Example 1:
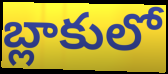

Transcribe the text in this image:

బ్లాకులో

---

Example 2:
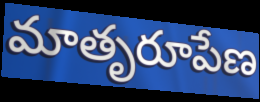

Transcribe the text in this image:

మాతృరూపేణ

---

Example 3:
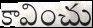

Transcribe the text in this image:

కావించు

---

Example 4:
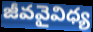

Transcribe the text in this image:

జీవవైవిధ్య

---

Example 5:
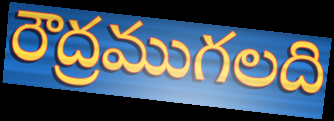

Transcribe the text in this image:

రౌద్రముగలది